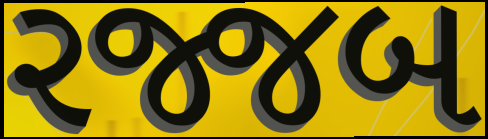
રજ્જબ